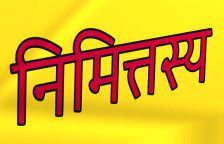
निमित्तस्य